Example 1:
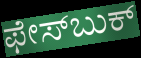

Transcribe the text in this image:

ಫೇಸ್‍ಬುಕ್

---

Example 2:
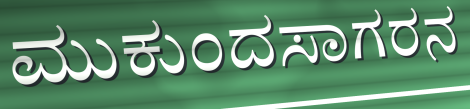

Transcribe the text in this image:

ಮುಕುಂದಸಾಗರನ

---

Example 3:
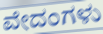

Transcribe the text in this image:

ವೇದಂಗಳು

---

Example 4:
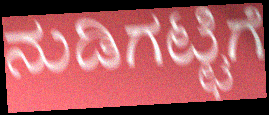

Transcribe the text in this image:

ನುಡಿಗಟ್ಟಿಗೆ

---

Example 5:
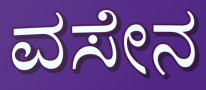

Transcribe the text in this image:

ವಸೇನ